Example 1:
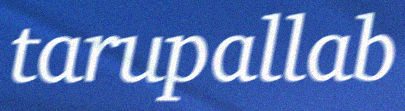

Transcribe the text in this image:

tarupallab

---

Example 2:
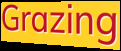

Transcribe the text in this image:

Grazing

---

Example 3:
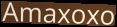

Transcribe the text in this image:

Amaxoxo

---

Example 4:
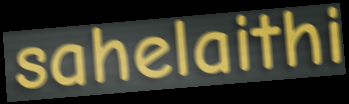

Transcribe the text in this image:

sahelaithi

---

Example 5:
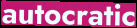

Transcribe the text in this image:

autocratic